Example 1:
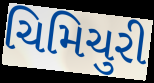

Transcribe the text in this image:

ચિમિચુરી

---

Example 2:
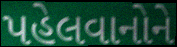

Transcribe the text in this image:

પહેલવાનોને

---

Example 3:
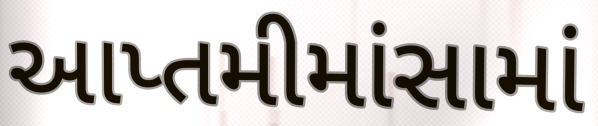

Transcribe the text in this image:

આપ્તમીમાંસામાં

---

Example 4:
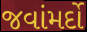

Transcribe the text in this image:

જવાંમર્દો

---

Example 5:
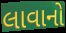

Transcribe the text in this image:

લાવાનો